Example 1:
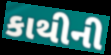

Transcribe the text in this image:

કાથીની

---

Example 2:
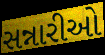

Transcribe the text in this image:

સન્નારીઓ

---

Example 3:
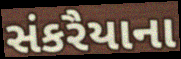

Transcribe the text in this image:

સંકરૈયાના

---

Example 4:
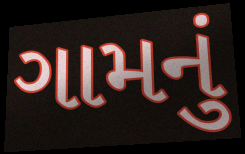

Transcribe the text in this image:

ગામનું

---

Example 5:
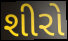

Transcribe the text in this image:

શીરો